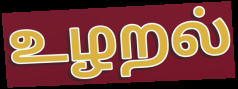
உழறல்